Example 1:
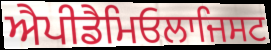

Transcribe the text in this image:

ਐਪੀਡੈਮਿਓਲਾਜਿਸਟ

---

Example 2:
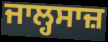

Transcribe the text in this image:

ਜਾਲ੍ਹਸਾਜ਼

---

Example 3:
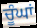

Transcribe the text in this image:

ਚੂੰਘਾਂ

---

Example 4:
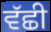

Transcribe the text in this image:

ਵੱਛੀ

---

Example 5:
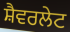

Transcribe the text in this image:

ਸ਼ੈਵਰਲੇਟ